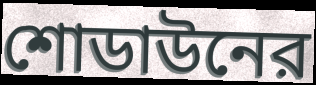
শোডাউনের